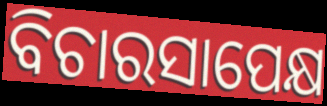
ବିଚାରସାପେକ୍ଷ